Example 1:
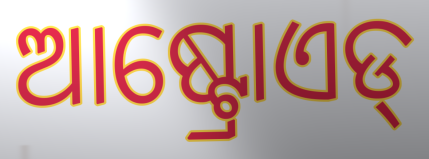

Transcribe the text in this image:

ଆଷ୍ଟ୍ରୋଏଡ୍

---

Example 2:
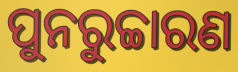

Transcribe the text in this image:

ପୁନରୁଚ୍ଚାରଣ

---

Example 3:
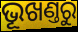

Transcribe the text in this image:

ଭୂଖଣ୍ତରୁ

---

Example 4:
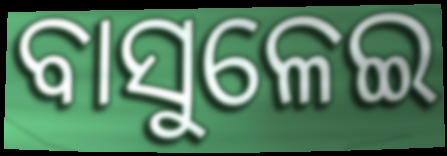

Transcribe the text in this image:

ବାସୁଳେଇ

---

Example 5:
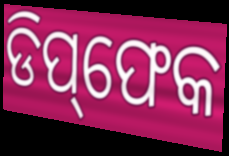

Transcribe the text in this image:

ଡିପ୍‌ଫେକ